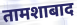
तामशाबाद